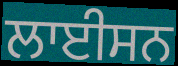
ਲਾਈਸਨ